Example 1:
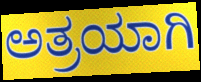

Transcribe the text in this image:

ಅತ್ರಯಾಗಿ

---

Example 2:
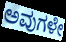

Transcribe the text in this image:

ಅವುಗಳೇ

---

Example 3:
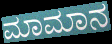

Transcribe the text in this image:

ಮಾಮಾನ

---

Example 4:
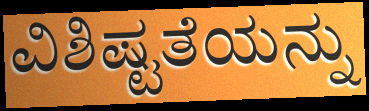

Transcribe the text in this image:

ವಿಶಿಷ್ಟತೆಯನ್ನು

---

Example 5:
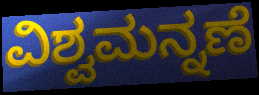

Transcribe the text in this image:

ವಿಶ್ವಮನ್ನಣೆ